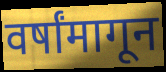
वर्षांमागून